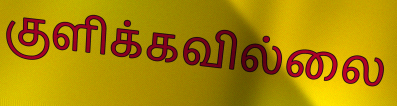
குளிக்கவில்லை